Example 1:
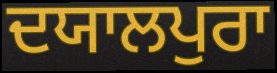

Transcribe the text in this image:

ਦਯਾਲਪੁਰਾ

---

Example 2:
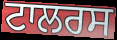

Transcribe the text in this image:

ਟਾਲਰਸ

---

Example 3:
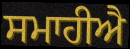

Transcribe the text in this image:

ਸਮਾਹੀਐ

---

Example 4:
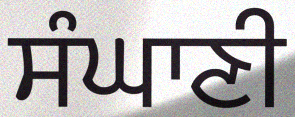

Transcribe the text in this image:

ਸੰਘਾਣੀ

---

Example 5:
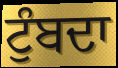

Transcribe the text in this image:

ਟੁੰਬਦਾ